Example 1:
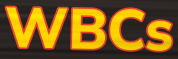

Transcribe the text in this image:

WBCs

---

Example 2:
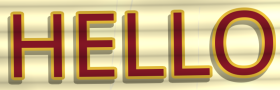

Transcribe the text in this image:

HELLO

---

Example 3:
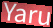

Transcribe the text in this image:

Yaru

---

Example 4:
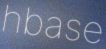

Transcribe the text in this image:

hbase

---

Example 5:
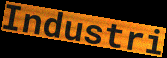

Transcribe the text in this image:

Industri